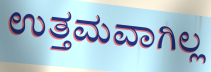
ಉತ್ತಮವಾಗಿಲ್ಲ